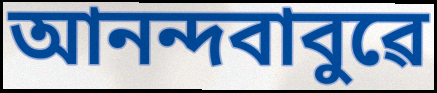
আনন্দবাবুৱে